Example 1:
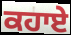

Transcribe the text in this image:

ਕਹਾਏ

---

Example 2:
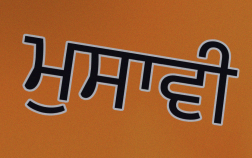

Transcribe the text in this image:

ਮੁਸਾਵੀ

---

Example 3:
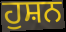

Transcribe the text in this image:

ਹੁਸ਼ਨ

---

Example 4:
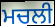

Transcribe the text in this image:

ਮਚਲੀ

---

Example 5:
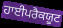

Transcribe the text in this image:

ਹਾਈਪਰੈਕਯੂਟ